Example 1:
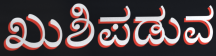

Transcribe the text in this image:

ಖುಶಿಪಡುವ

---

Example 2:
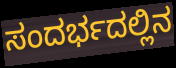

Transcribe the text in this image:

ಸಂದರ್ಭದಲ್ಲಿನ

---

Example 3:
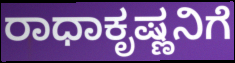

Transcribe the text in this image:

ರಾಧಾಕೃಷ್ಣನಿಗೆ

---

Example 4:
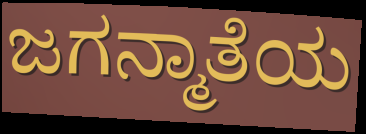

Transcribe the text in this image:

ಜಗನ್ಮಾತೆಯ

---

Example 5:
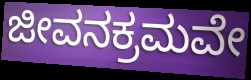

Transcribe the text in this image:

ಜೀವನಕ್ರಮವೇ